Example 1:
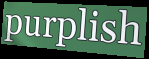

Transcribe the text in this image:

purplish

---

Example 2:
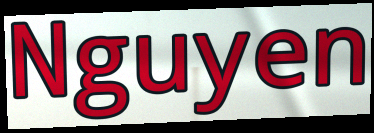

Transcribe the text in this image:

Nguyen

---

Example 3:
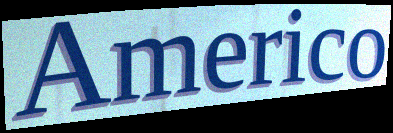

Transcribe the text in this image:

Americo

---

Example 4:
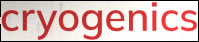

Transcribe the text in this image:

cryogenics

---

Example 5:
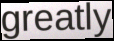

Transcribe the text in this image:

greatly